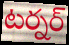
టర్నర్